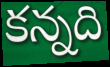
కన్నది